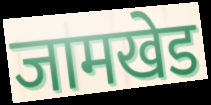
जामखेड